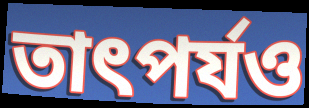
তাৎপৰ্যও